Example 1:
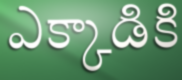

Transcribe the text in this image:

ఎక్కాడికి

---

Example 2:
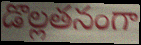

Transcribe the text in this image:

డొల్లతనంగా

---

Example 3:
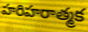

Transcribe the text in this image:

హరిహరాత్మక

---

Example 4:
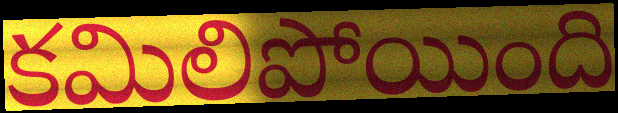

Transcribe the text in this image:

కమిలిపోయింది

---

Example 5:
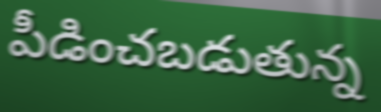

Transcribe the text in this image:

పీడించబడుతున్న